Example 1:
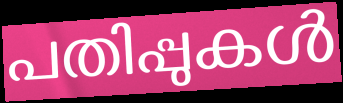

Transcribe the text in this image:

പതിപ്പുകൾ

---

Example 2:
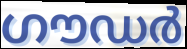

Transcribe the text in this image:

ഗൗഡർ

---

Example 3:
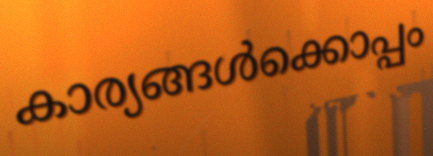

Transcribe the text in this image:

കാര്യങ്ങൾക്കൊപ്പം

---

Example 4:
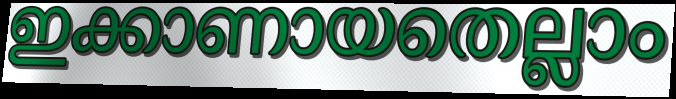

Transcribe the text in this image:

ഇക്കാണായതെല്ലാം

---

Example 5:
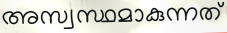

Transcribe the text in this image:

അസ്വസ്ഥമാകുന്നത്